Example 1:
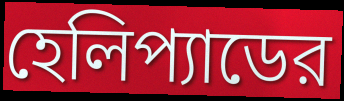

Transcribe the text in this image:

হেলিপ্যাডের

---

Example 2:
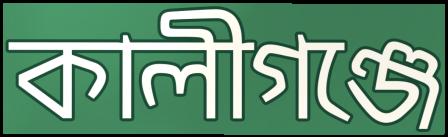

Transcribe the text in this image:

কালীগঞ্জে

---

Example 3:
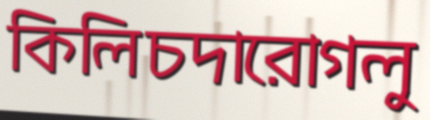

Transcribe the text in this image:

কিলিচদারোগলু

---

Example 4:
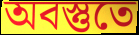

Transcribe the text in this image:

অবস্তুতে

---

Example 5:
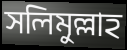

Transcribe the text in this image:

সলিমুল্লাহ